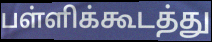
பள்ளிக்கூடத்து